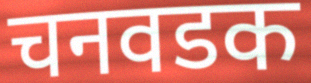
चनवडक